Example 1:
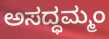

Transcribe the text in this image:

ಅಸದ್ಧಮ್ಮಂ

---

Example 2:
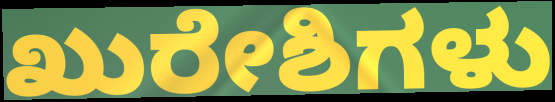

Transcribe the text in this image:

ಖುರೇಶಿಗಳು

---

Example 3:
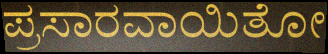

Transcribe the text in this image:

ಪ್ರಸಾರವಾಯಿತೋ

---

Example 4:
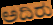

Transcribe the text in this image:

ಅದಿರು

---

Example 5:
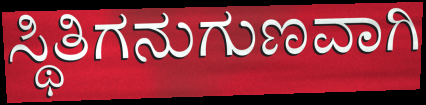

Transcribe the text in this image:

ಸ್ಥಿತಿಗನುಗುಣವಾಗಿ